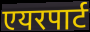
एयरपार्ट